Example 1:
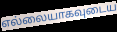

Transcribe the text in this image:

எல்லையாகவுடைய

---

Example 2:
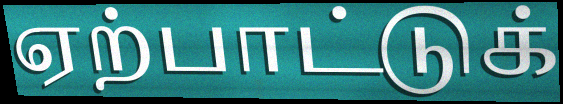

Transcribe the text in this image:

ஏற்பாட்டுக்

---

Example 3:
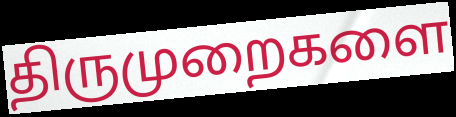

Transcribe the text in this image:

திருமுறைகளை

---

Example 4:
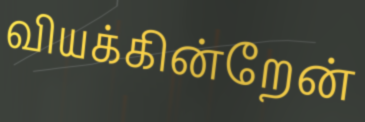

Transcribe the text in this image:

வியக்கின்றேன்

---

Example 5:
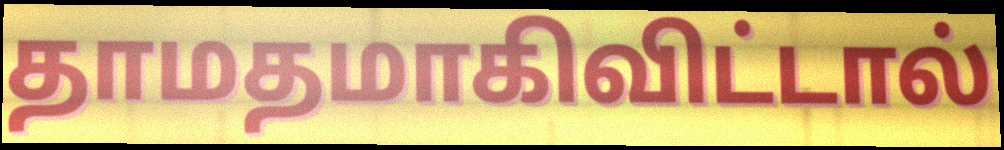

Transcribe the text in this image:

தாமதமாகிவிட்டால்